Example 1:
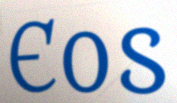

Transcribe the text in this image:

Eos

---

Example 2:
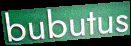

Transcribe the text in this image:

bubutus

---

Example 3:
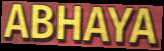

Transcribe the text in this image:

ABHAYA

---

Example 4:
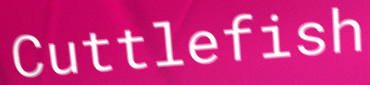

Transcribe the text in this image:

Cuttlefish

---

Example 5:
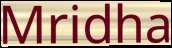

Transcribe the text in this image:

Mridha